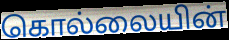
கொல்லையின்